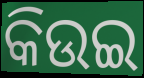
କିଉଇ